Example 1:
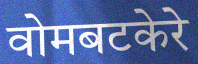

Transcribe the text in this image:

वोमबटकेरे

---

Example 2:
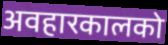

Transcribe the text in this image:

अवहारकालको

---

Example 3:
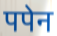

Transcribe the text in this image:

पपेन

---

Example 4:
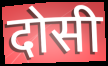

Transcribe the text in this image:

दोसी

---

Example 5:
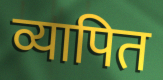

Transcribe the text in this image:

व्यापित